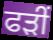
ਫੜੀਂ